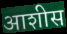
आशीस